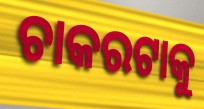
ଚାକରଟାକୁ